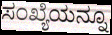
ಸಂಖ್ಯೆಯನ್ನೂ